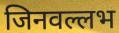
जिनवल्लभ